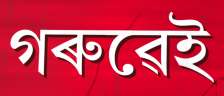
গৰুৱেই